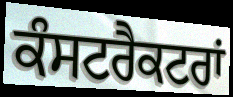
ਕੰਸਟਰੈਕਟਰਾਂ